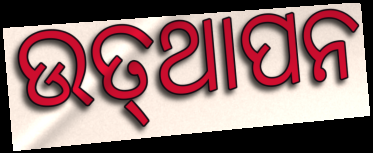
ଉତ୍‍ଥାପନ